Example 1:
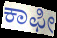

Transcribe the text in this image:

ಕಾಫೀ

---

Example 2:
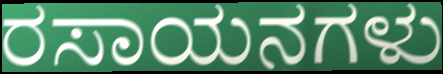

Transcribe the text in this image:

ರಸಾಯನಗಳು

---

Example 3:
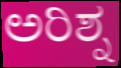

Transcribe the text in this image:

ಅರಿಶ್ನ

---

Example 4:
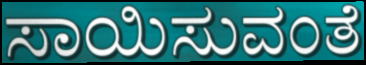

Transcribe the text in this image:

ಸಾಯಿಸುವಂತೆ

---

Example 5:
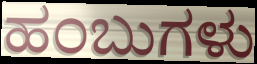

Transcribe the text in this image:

ಹಂಬುಗಳು